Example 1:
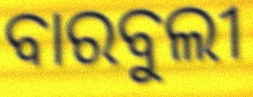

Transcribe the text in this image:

ବାରବୁଲୀ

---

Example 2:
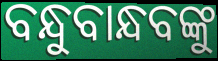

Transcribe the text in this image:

ବନ୍ଧୁବାନ୍ଧବଙ୍କୁ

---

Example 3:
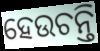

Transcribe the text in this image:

ହେଉଚନ୍ତି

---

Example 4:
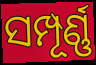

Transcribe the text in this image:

ସମ୍ପୂର୍ଣ୍ଣ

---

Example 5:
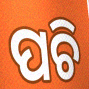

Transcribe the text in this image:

ପଚି